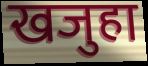
खजुहा